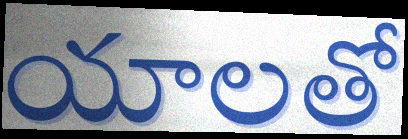
యాలతో